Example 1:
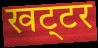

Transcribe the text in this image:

खट्‌टर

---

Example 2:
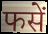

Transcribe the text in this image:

फसें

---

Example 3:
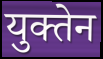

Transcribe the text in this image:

युक्तेन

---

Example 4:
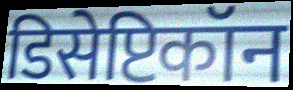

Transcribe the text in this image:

डिसेप्टिकॉन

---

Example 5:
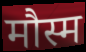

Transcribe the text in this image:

मौस्म